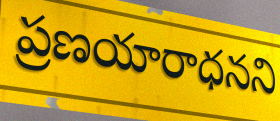
ప్రణయారాధనని